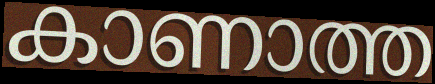
കാണാത്ത